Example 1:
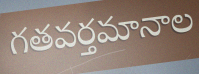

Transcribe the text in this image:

గతవర్తమానాల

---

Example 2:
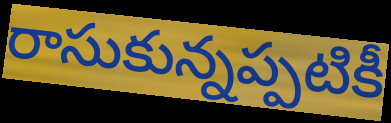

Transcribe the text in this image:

రాసుకున్నప్పటికీ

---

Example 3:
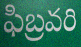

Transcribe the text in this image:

ఫిబ్రవరి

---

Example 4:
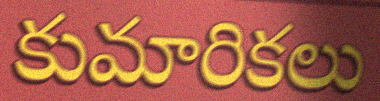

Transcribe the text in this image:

కుమారికలు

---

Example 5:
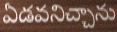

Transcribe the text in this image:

ఏడవనిచ్చాను